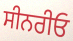
ਸੀਨਰੀਓ